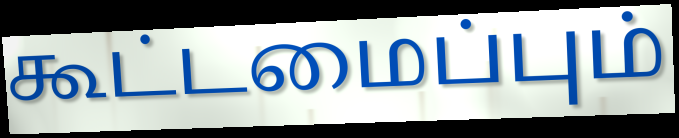
கூட்டமைப்பும்